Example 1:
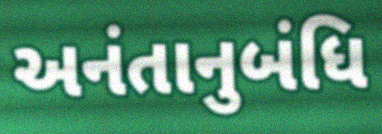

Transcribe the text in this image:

અનંતાનુબંધિ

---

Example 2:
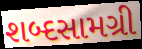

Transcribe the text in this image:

શબ્દસામગ્રી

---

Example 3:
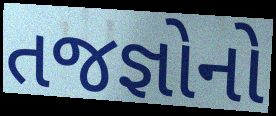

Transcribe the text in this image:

તજજ્ઞોનો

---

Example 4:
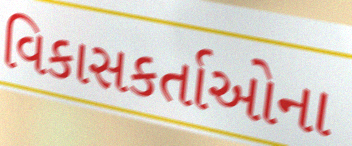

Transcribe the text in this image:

વિકાસકર્તાઓના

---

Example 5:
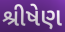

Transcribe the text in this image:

શ્રીષેણ